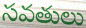
సవతులు